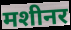
मशीनर